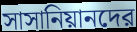
সাসানিয়ানদের